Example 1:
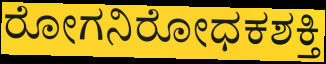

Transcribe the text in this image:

ರೋಗನಿರೋಧಕಶಕ್ತಿ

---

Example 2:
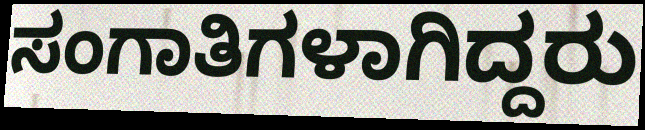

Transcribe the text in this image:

ಸಂಗಾತಿಗಳಾಗಿದ್ದರು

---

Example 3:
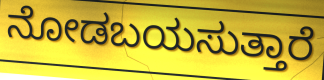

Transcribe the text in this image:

ನೋಡಬಯಸುತ್ತಾರೆ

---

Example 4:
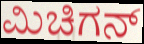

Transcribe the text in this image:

ಮಿಚಿಗನ್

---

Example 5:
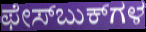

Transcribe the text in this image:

ಫೇಸ್‌ಬುಕ್‌ಗಳ